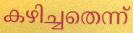
കഴിച്ചതെന്ന്